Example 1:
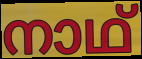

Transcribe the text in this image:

നാഥ്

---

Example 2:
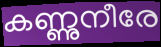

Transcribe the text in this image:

കണ്ണുനീരേ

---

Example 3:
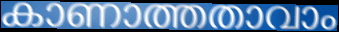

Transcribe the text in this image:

കാണാത്തതാവാം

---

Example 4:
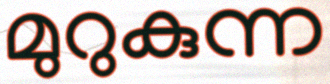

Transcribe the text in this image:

മുറുകുന്ന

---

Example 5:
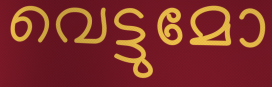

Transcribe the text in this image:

വെട്ടുമോ